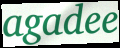
agadee